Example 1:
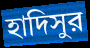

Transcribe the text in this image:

হাদিসুর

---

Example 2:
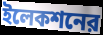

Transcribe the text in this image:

ইলেকশনের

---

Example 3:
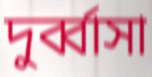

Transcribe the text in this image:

দুর্ব্বাসা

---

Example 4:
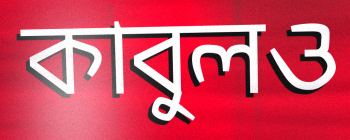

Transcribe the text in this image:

কাবুলও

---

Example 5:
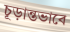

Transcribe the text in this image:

চূড়ান্তভাবে